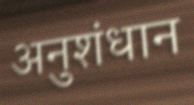
अनुशंधान